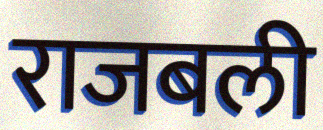
राजबली